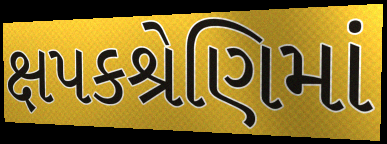
ક્ષપકશ્રેણિમાં